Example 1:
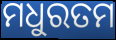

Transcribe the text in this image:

ମଧୁରତମ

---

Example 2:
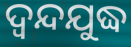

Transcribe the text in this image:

ଦ୍ୱନ୍ଦଯୁଦ୍ଧ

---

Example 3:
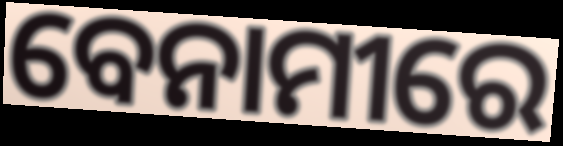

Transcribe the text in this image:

ବେନାମୀରେ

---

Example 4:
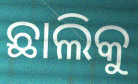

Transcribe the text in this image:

ଛାଲିକୁ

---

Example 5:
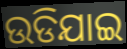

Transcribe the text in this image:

ଉଡିଯାଇ